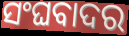
ସଂଘବାଦର